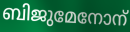
ബിജുമേനോന്